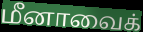
மீனாவைக்